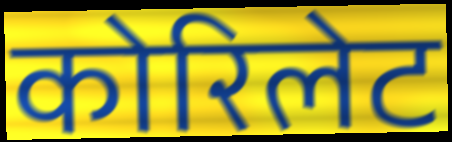
कोरिलेट